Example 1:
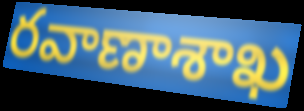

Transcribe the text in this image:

రవాణాశాఖ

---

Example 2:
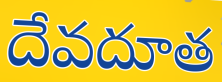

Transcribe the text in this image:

దేవదూత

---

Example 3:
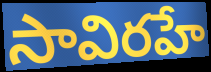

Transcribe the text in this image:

సావిరహే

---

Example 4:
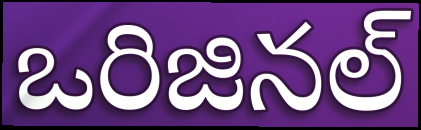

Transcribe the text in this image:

ఒరిజినల్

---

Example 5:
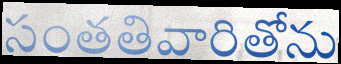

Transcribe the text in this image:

సంతతివారితోను